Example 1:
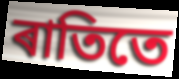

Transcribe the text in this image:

ৰাতিতে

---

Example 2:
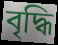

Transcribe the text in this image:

বৃদ্ধি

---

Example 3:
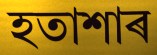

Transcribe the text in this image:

হতাশাৰ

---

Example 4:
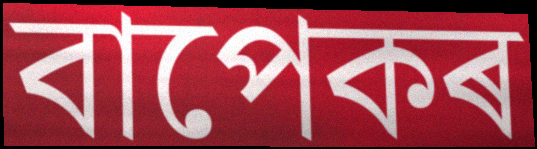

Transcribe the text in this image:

বাপেকৰ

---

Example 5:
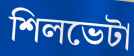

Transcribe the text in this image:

শিলভেটা